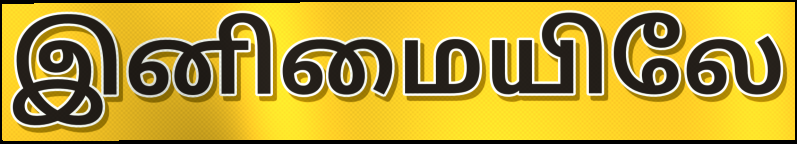
இனிமையிலே